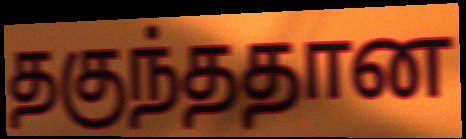
தகுந்ததான